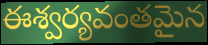
ఈశ్వర్యవంతమైన